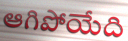
ఆగిపోయేది